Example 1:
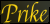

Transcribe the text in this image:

Prike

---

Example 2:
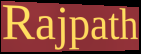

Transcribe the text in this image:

Rajpath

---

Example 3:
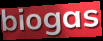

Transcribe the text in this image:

biogas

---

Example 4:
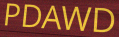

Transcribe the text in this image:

PDAWD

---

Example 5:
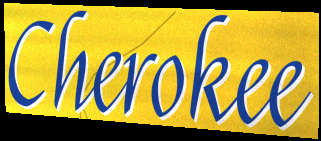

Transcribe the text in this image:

Cherokee